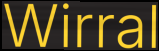
Wirral